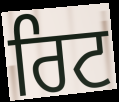
ਰਿਟ